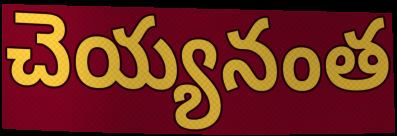
చెయ్యనంత